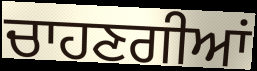
ਚਾਹਣਗੀਆਂ